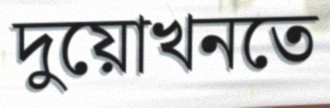
দুয়োখনতে